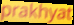
prakhyat